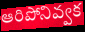
ఆరిపోనివ్వక